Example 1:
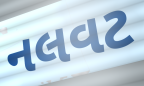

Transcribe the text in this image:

નલવટ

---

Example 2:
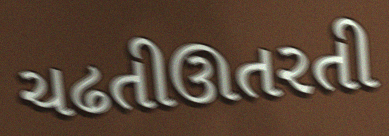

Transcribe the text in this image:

ચઢતીઊતરતી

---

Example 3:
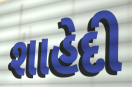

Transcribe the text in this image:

શાહેદી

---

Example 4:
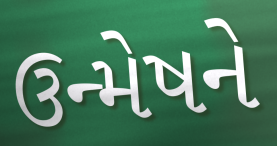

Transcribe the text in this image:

ઉન્મેષને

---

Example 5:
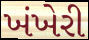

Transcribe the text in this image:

ખંખેરી